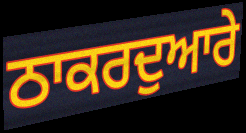
ਠਾਕਰਦੁਆਰੇ